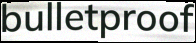
bulletproof